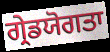
ਗ੍ਰੇਡਯੋਗਤਾ